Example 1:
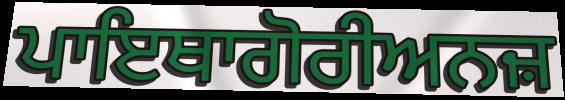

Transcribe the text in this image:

ਪਾਇਥਾਗੋਰੀਅਨਜ਼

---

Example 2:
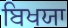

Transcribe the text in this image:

ਬਿਖਯਾ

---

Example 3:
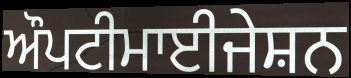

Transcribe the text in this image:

ਔਪਟੀਮਾਈਜੇਸ਼ਨ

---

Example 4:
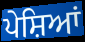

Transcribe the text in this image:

ਪੇਸ਼ਿਆਂ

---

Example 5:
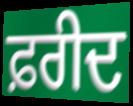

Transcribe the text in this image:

ਫ਼ਰੀਦ